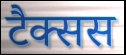
टैक्सस